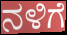
ನಳಿಗೆ